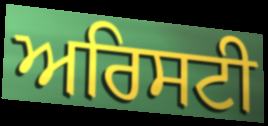
ਅਰਿਸਟੀ